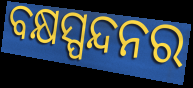
ବକ୍ଷସ୍ପନ୍ଦନର